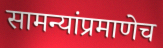
सामन्यांप्रमाणेच